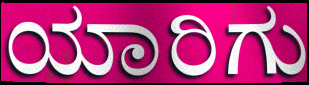
ಯಾರಿಗು